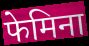
फेमिना